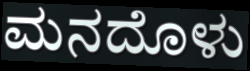
ಮನದೊಳು